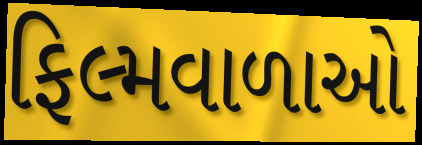
ફિલ્મવાળાઓ